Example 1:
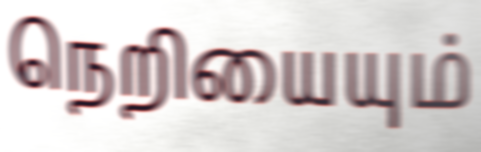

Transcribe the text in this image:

நெறியையும்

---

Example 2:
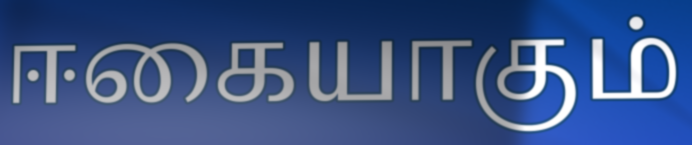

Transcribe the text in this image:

ஈகையாகும்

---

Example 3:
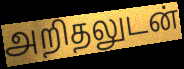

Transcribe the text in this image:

அறிதலுடன்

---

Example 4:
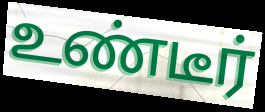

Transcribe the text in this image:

உண்டீர்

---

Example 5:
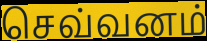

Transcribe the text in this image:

செவ்வனம்